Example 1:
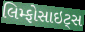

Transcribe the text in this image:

લિમ્ફોસાઇટ્સ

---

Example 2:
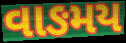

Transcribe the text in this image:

વાઙમય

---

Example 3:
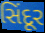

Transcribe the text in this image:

સિંદૂર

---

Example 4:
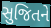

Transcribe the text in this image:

સુજિતને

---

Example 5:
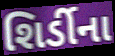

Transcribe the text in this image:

શિર્ડીના